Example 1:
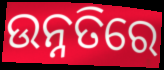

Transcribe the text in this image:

ଉନ୍ନତିରେ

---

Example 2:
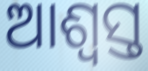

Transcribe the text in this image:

ଆଶ୍ୱସ୍ତ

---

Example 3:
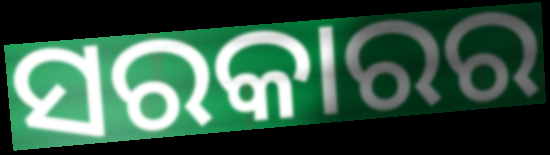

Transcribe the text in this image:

ସରକାରର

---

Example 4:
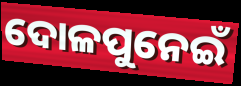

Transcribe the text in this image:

ଦୋଳପୁନେଇଁ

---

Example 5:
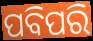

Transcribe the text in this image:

ପବିପରି